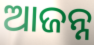
ଆଜନ୍ନ